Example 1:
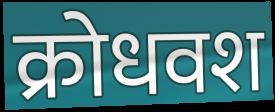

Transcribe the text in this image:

क्रोधवश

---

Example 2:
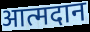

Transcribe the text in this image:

आत्मदान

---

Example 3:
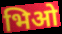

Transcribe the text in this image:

भिओ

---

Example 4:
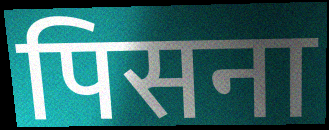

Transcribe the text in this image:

पिसना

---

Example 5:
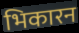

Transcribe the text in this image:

भिकारन